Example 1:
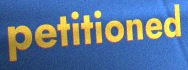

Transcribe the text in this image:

petitioned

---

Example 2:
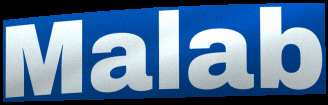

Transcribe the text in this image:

Malab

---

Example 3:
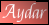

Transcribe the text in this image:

Aydar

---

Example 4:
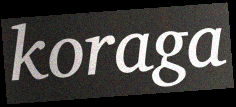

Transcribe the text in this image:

koraga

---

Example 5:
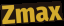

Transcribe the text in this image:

Zmax